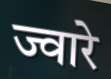
ज्वारे